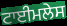
ਟਾਈਮਲੇਸ